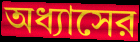
অধ্যাসের